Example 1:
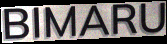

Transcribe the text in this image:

BIMARU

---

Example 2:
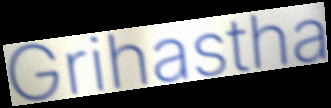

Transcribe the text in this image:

Grihastha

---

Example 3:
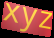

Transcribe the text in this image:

xyz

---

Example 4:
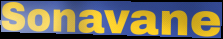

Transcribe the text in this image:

Sonavane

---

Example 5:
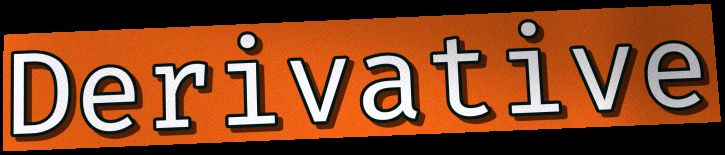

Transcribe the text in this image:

Derivative